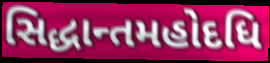
સિદ્ધાન્તમહોદધિ